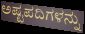
ಅಷ್ಟಪದಿಗಳನ್ನು